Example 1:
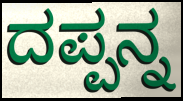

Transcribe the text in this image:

ದಪ್ಪನ್ನ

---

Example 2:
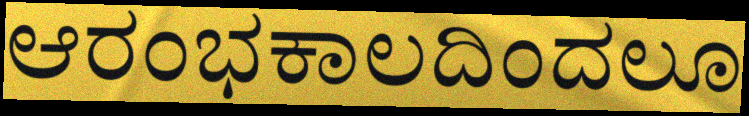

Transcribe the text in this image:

ಆರಂಭಕಾಲದಿಂದಲೂ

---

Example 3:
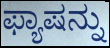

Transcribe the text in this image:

ಫ್ಯಾಷನ್ನು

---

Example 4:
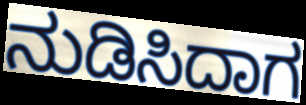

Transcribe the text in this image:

ನುಡಿಸಿದಾಗ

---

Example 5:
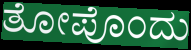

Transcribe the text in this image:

ತೋಪೊಂದು